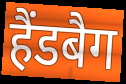
हैंडबैग